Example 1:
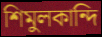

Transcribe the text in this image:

শিমুলকান্দি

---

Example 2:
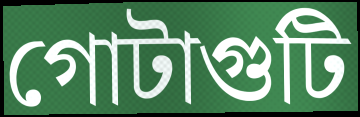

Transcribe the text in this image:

গোটাগুটি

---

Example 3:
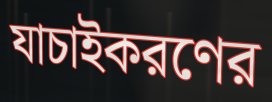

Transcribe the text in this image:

যাচাইকরণের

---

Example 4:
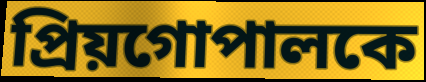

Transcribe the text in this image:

প্রিয়গোপালকে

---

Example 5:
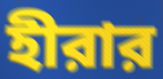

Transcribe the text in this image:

হীরার